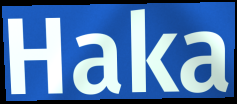
Haka